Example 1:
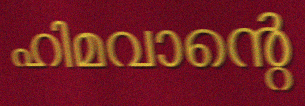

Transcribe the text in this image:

ഹിമവാന്റെ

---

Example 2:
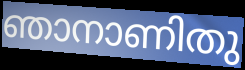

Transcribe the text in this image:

ഞാനാണിതു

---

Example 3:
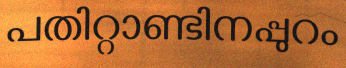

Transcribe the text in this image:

പതിറ്റാണ്ടിനപ്പുറം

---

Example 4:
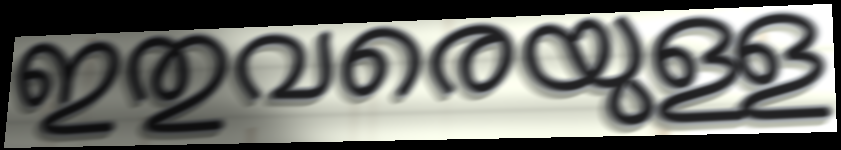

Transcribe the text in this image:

ഇതുവരെയുള്ള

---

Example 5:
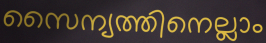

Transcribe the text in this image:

സൈന്യത്തിനെല്ലാം